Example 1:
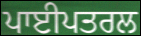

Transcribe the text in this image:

ਪਾਈਪਤਰਲ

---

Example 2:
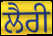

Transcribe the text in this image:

ਲੈਰੀ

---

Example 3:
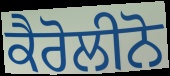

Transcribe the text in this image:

ਕੈਰੋਲੀਨੋ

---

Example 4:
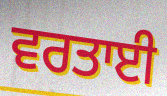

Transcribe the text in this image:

ਵਰਤਾਈ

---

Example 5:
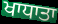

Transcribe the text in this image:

ਖਾਧਾਤਾ